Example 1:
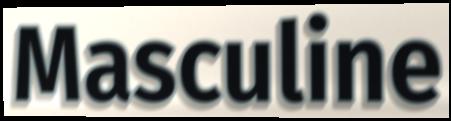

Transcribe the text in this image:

Masculine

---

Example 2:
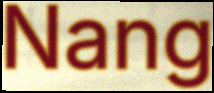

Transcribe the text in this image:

Nang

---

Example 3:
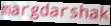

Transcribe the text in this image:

margdarshak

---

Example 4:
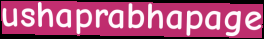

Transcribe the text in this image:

ushaprabhapage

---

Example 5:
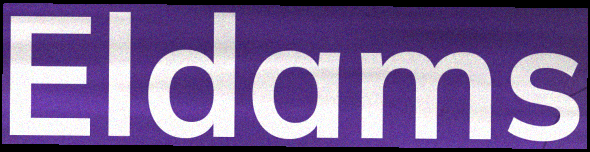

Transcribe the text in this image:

Eldams